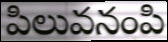
పిలువనంపి